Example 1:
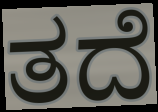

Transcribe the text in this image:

ತದೆ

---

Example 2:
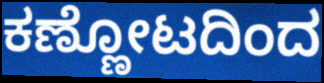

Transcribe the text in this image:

ಕಣ್ಣೋಟದಿಂದ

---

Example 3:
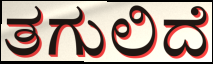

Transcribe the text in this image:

ತಗುಲಿದೆ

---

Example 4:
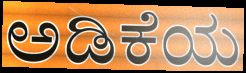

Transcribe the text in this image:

ಅಡಿಕೆಯ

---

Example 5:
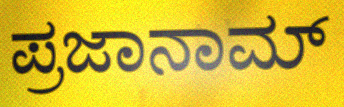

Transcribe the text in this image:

ಪ್ರಜಾನಾಮ್